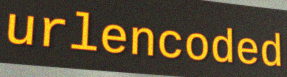
urlencoded